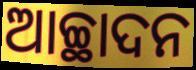
ଆଚ୍ଛାଦନ